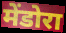
मेंडोरा